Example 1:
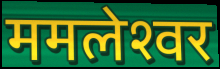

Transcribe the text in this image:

ममलेश्वर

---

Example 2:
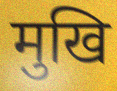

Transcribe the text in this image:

मुखि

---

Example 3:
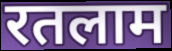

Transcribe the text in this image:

रतलाम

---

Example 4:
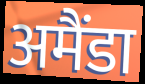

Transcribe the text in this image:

अमैंडा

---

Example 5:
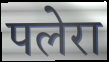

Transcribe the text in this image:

पलेरा